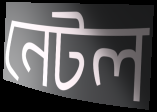
নেটল